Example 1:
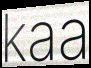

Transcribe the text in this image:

kaa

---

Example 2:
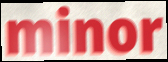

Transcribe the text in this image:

minor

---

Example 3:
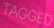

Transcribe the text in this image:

TAGGED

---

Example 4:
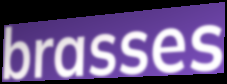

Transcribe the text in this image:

brasses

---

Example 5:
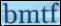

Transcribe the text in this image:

bmtf